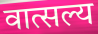
वात्सल्य